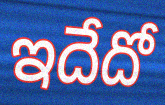
ఇదేదో